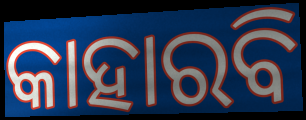
କାହାରବି